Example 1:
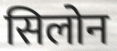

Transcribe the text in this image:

सिलोन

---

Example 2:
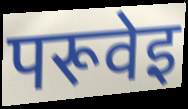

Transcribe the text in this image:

परूवेइ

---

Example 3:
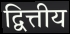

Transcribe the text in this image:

द्वित्तीय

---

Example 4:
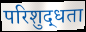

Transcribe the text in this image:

परिशुद्धता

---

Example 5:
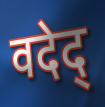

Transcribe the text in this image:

वदेद्